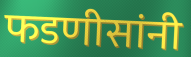
फडणीसांनी